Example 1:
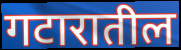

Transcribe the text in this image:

गटारातील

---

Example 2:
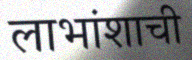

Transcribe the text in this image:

लाभांशाची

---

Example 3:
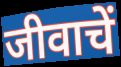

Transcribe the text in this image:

जीवाचें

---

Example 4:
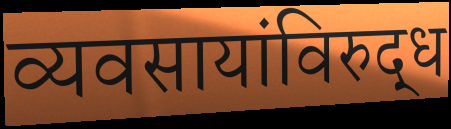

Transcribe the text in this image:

व्यवसायांविरुद्ध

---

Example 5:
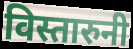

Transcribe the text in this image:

विस्तारुनी